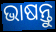
ଭାଷନ୍ତୁ